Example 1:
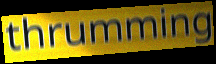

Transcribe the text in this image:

thrumming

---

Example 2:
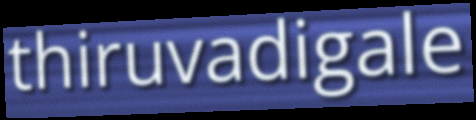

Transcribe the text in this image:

thiruvadigale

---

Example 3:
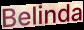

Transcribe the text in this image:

Belinda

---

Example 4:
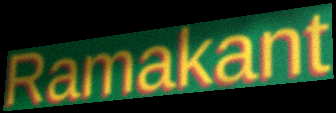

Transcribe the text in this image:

Ramakant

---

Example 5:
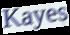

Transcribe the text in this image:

Kayes